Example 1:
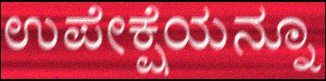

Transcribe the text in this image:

ಉಪೇಕ್ಷೆಯನ್ನೂ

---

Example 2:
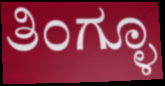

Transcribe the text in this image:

ತಿಂಗ್ಳೂ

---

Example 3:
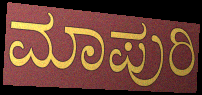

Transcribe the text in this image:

ಮಾಪುರಿ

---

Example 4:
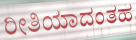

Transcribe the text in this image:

ರೀತಿಯಾದಂತಹ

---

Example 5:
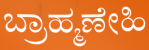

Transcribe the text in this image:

ಬ್ರಾಹ್ಮಣೇಹಿ